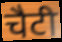
चैटी